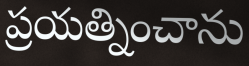
ప్రయత్నించాను